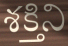
శక్తిని